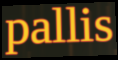
pallis